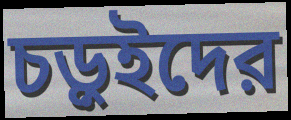
চড়ুইদের